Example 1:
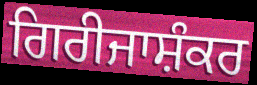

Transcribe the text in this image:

ਗਿਰੀਜਾਸ਼ੰਕਰ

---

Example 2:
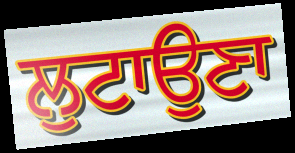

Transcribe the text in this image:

ਲੁਟਾਉਣਾ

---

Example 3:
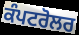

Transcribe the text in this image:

ਕੰਪਟਰੋਲਰ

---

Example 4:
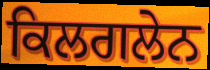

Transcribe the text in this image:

ਕਿਲਗਲੇਨ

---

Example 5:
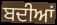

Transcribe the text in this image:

ਬਦੀਆਂ